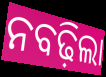
ନବଢ଼ିଲା